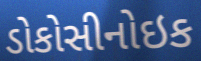
ડોકોસીનોઇક